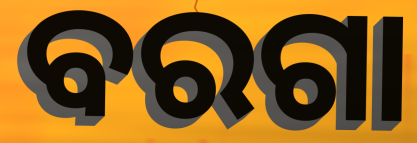
ବରଗା